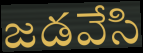
జడవేసి